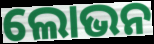
ଲୋଭନ